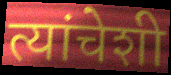
त्यांचेशी